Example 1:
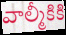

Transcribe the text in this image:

వాల్మీకికి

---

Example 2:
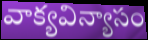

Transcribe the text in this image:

వాక్యవిన్యాసం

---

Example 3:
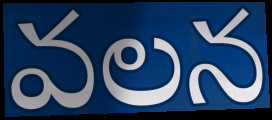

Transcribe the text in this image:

వలన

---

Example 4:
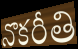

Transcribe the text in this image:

నొకరీతి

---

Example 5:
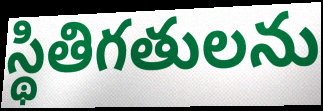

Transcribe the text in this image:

స్థితిగతులను